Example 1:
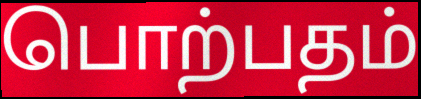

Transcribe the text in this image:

பொற்பதம்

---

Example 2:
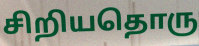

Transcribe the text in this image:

சிறியதொரு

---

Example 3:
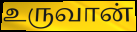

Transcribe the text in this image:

உருவான்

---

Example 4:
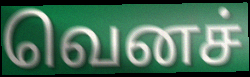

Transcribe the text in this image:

வெனச்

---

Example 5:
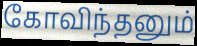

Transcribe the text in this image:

கோவிந்தனும்